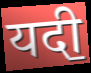
यदी॒